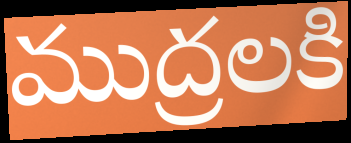
ముద్రలకి